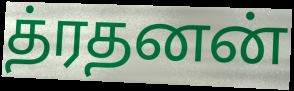
த்ரதனன்